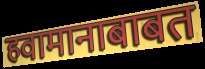
हवामानाबाबत